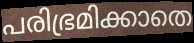
പരിഭ്രമിക്കാതെ